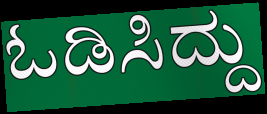
ಓಡಿಸಿದ್ದು